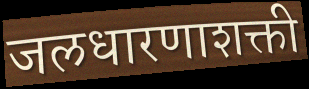
जलधारणाशक्ती